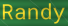
Randy